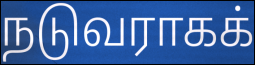
நடுவராகக்